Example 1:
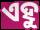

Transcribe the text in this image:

ଏହୁ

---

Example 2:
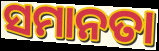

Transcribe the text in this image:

ସମାନତା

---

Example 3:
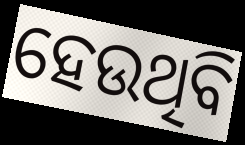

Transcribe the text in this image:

ହେଉଥିବି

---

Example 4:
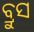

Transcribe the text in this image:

ବ୍ରୁସ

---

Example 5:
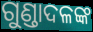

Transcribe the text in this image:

ଗୁଣ୍ଡାଦଳଙ୍କ